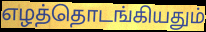
எழத்தொடங்கியதும்